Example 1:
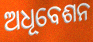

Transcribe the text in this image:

ଅଧୂବେଶନ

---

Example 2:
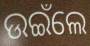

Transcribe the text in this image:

ଉଇଁଲେ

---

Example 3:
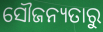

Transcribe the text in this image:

ସୌଜନ୍ୟତାରୁ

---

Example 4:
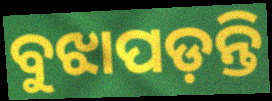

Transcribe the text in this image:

ବୁଝାପଡ଼ନ୍ତି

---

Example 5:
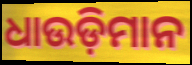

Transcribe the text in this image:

ଧାଉଡ଼ିମାନ